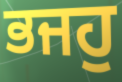
ਭਜਹੁ